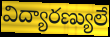
విద్యారణ్యులే